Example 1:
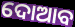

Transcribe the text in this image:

ଦୋଆବ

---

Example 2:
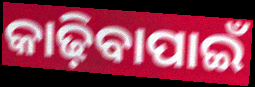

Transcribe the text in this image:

କାଢ଼ିବାପାଇଁ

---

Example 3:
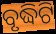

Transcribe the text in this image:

ବୃଦ୍ଧିଟି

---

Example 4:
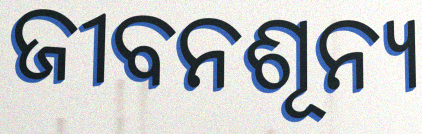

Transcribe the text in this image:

ଜୀବନଶୂନ୍ୟ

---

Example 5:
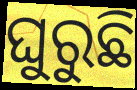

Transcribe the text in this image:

ଘୁରୁଛି